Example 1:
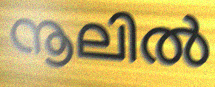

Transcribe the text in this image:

നൂലിൽ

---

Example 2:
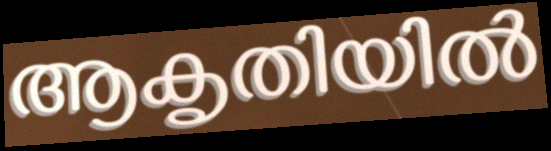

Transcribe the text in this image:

ആകൃതിയിൽ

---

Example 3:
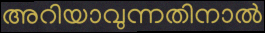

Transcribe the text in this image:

അറിയാവുന്നതിനാൽ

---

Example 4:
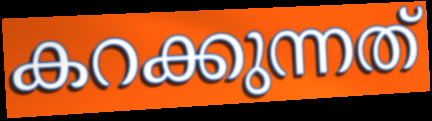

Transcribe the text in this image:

കറക്കുന്നത്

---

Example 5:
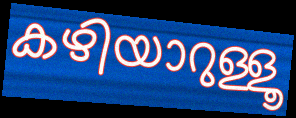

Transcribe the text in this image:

കഴിയാറുള്ളൂ